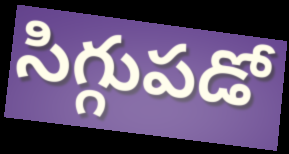
సిగ్గుపడో